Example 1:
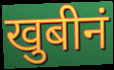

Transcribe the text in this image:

खुबीनं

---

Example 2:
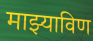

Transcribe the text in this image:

माझ्याविण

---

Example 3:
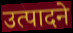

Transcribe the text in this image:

उत्पादने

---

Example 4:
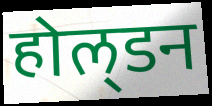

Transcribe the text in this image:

होल्डन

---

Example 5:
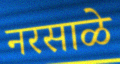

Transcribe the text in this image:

नरसाळे